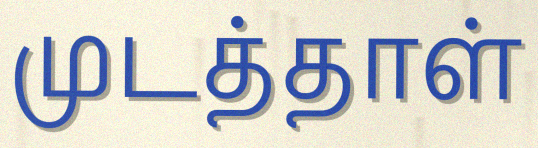
முடத்தாள்